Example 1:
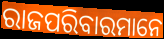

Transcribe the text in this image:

ରାଜପରିବାରମାନେ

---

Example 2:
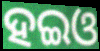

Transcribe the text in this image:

ହଇଓ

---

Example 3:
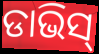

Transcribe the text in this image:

ଡାଭିସ୍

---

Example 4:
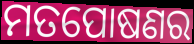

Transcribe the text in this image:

ମତପୋଷଣର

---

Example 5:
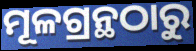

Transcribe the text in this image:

ମୂଳଗ୍ରନ୍ଥଠାରୁ